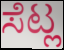
ಸೆಟ್ಲ